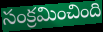
సంక్రమించింది